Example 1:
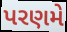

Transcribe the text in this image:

પરણમે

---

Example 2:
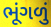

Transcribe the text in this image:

ભૂંગળું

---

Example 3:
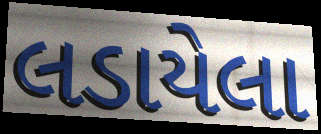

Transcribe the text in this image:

લડાયેલા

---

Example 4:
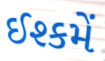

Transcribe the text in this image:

ઈશ્કમેં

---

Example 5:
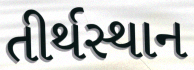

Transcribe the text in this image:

તીર્થસ્થાન